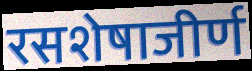
रसशेषाजीर्ण